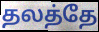
தலத்தே